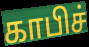
காபிச்